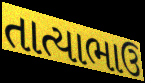
તાત્યાભાઉ